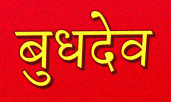
बुधदेव